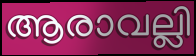
ആരാവല്ലി